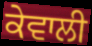
ਕੇਵਾਲੀ